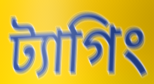
ট্যাগিং